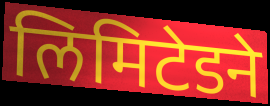
लिमिटेडने